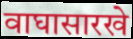
वाघासारखे